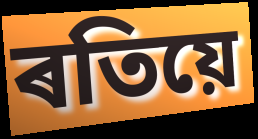
ৰতিয়ে